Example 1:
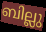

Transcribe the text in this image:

ബില്ലു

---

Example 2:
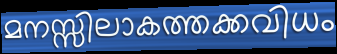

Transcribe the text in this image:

മനസ്സിലാകത്തക്കവിധം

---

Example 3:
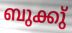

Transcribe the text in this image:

ബുക്കു്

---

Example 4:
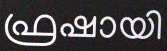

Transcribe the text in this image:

ഫ്രഷായി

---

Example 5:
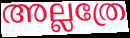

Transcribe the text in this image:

അല്ലത്രേ